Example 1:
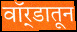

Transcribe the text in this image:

वॉर्डातून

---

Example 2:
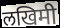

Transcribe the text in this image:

लखिमी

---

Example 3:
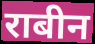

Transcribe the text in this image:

राबीन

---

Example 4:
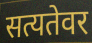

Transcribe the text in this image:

सत्यतेवर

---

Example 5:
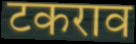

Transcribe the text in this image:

टकराव